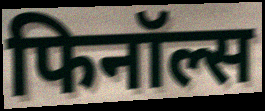
फिनॉल्स